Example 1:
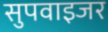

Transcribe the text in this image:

सुपवाइजर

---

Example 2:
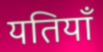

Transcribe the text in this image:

यतियाँ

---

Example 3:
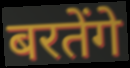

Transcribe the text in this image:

बरतेंगे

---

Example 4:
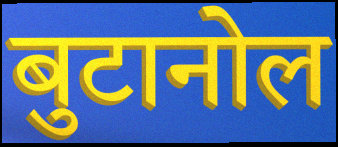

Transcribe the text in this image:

बुटानोल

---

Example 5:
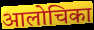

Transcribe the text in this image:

आलोचिका